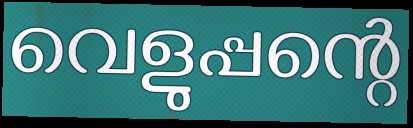
വെളുപ്പന്റെ